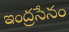
ఇంద్రసేనం